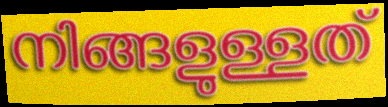
നിങ്ങളുള്ളത്